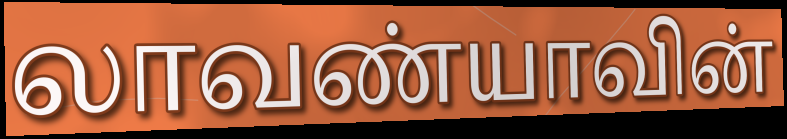
லாவண்யாவின்